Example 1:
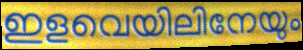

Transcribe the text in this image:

ഇളവെയിലിനേയും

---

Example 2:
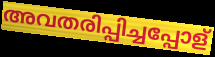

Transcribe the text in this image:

അവതരിപ്പിച്ചപ്പോള്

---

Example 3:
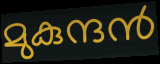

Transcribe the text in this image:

മുകുന്ദൻ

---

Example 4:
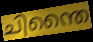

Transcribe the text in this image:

ചിന്തൈ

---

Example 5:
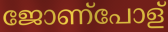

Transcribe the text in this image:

ജോണ്പോള്